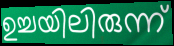
ഉച്ചയിലിരുന്ന്